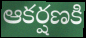
ఆకర్షణకి